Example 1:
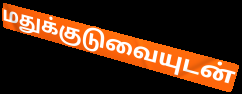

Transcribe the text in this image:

மதுக்குடுவையுடன்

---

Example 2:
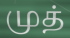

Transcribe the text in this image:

முத்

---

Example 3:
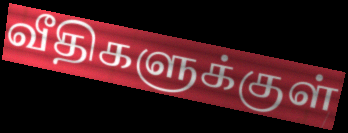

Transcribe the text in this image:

வீதிகளுக்குள்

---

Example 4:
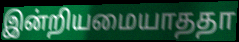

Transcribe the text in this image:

இன்றியமையாததா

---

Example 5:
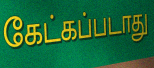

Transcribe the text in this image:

கேட்கப்படாது